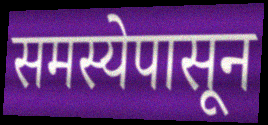
समस्येपासून